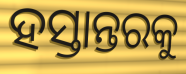
ହସ୍ତାନ୍ତରକୁ